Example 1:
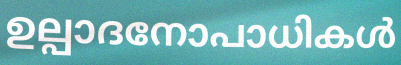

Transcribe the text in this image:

ഉല്പാദനോപാധികൾ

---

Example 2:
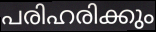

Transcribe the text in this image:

പരിഹരിക്കും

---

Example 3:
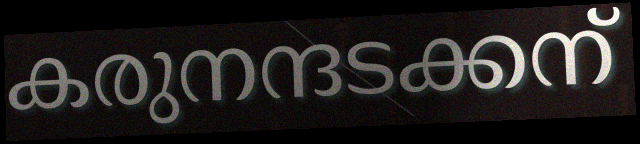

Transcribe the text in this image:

കരുനന്ദടക്കന്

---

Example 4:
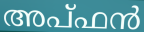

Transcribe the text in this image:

അപ്ഫൻ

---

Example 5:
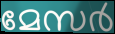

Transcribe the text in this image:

മേസർ